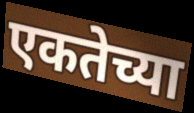
एकतेच्या